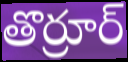
తొర్రూర్